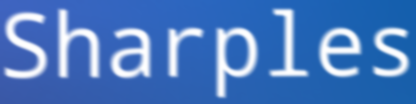
Sharples